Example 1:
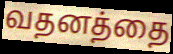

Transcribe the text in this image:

வதனத்தை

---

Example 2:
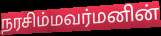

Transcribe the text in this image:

நரசிம்மவர்மனின்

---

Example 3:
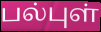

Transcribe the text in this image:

பல்புள்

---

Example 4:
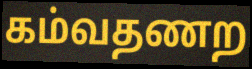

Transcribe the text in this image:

கம்வதணற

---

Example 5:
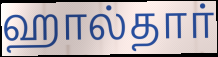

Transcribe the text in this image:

ஹால்தார்